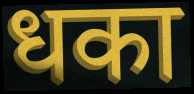
धका